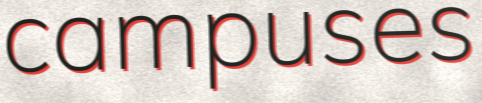
campuses